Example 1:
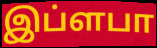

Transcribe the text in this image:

இப்ளபா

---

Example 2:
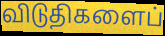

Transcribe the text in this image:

விடுதிகளைப்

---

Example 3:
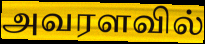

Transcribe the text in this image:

அவரளவில்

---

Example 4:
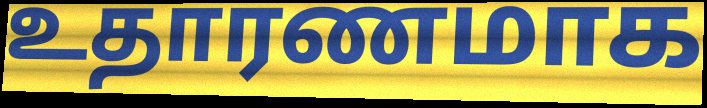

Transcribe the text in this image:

உதாரணமாக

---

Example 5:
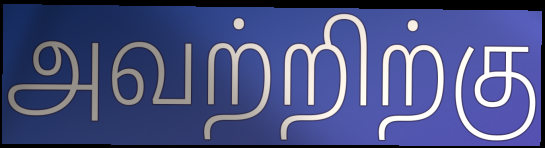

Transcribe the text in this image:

அவற்றிற்கு